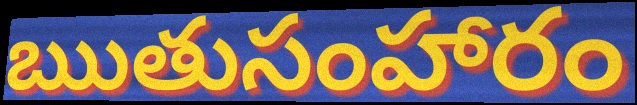
ఋతుసంహారం